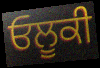
ਓਲੂਕੀ